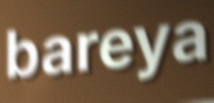
bareya